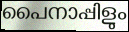
പൈനാപ്പിളും